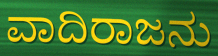
ವಾದಿರಾಜನು